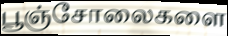
பூஞ்சோலைகளை